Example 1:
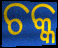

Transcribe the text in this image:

ଚକ୍କ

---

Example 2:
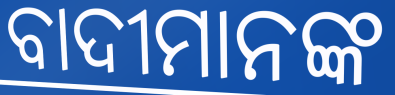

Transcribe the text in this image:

ବାଦୀମାନଙ୍କ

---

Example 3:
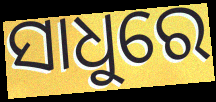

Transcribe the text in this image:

ସାଧୁରେ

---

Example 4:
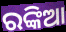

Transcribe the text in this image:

ରଙ୍କିଆ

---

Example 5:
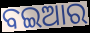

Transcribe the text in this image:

ବଇଆର